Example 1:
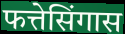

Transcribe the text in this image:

फत्तेसिंगास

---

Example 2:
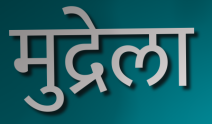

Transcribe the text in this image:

मुद्रेला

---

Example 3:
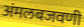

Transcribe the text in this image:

अंमलबजवणी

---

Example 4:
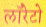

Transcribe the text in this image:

लॉरेटो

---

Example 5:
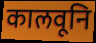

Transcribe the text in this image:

कालवूनि